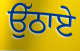
ਉੱਠਾਏ